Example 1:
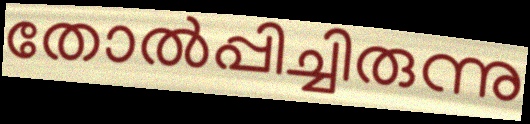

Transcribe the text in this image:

തോൽപ്പിച്ചിരുന്നു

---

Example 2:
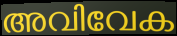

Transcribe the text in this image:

അവിവേക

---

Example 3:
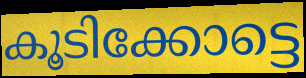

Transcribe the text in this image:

കൂടിക്കോട്ടെ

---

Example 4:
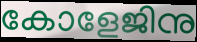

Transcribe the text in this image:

കോളേജിനു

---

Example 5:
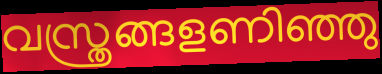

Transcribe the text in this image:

വസ്ത്രങ്ങളണിഞ്ഞു